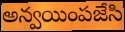
అన్వయింపజేసి